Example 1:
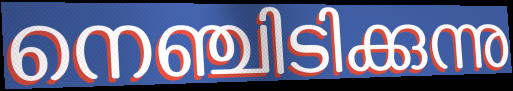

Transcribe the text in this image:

നെഞ്ചിടിക്കുന്നു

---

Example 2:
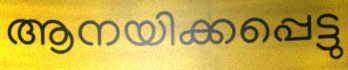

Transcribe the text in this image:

ആനയിക്കപ്പെട്ടു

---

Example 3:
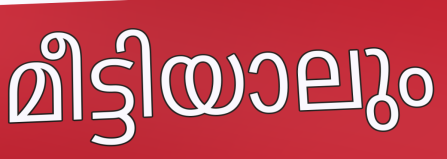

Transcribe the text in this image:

മീട്ടിയാലും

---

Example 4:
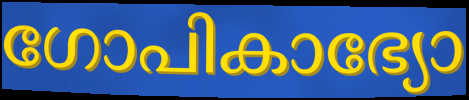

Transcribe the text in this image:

ഗോപികാഭ്യോ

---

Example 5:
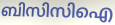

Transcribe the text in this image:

ബിസിസിഐ